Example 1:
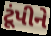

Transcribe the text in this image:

ટૂંપીને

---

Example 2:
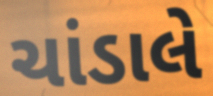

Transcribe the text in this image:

ચાંડાલે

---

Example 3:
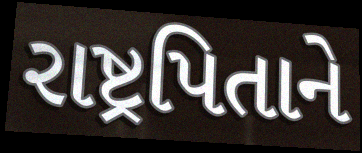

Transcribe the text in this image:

રાષ્ટ્રપિતાને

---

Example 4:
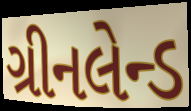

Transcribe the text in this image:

ગ્રીનલેન્ડ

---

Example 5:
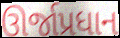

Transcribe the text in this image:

ઊર્જાપ્રધાન